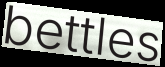
bettles